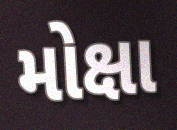
મોક્ષા